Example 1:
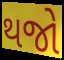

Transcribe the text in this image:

થજો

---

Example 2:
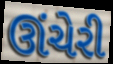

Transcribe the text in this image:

ઊંચેરી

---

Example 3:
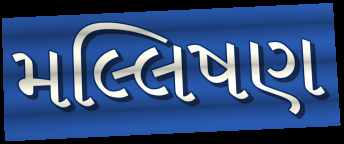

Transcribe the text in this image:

મલ્લિષણ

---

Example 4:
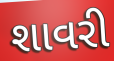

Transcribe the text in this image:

શાવરી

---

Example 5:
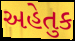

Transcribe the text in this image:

અહેતુક